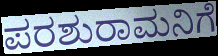
ಪರಶುರಾಮನಿಗೆ